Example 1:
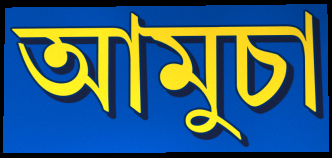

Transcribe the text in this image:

আমুচা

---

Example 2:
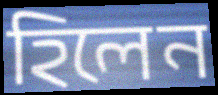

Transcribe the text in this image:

হিলেন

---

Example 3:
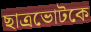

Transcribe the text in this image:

ছাত্রভোটকে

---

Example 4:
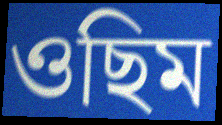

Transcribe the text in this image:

ওছিম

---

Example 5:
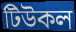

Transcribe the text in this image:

টিউকল